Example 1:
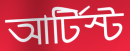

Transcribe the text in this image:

আর্টিস্ট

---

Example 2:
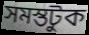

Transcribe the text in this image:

সমস্তটুক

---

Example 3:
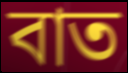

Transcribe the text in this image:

বাত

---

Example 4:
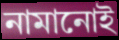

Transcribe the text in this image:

নামানোই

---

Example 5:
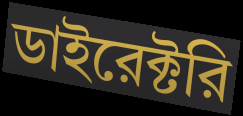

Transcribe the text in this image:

ডাইরেক্টরি